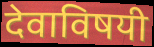
देवाविषयी